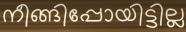
നീങ്ങിപ്പോയിട്ടില്ല